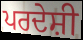
ਪਰਦੇਸ਼ੀ